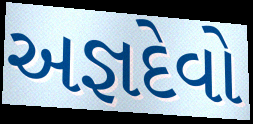
અજ્ઞદેવો